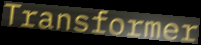
Transformer